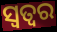
ସ୍ୱତ୍ୱର